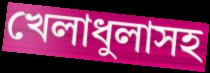
খেলাধুলাসহ